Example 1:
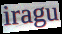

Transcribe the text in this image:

iragu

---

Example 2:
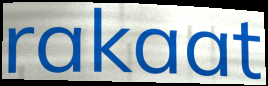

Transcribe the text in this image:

rakaat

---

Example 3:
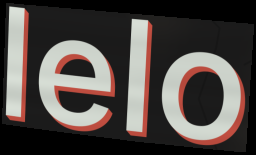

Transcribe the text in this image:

lelo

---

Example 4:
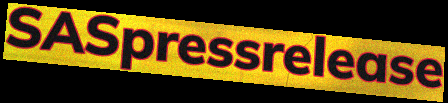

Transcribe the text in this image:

SASpressrelease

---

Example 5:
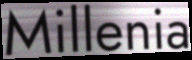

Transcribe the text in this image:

Millenia